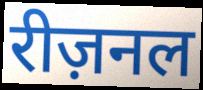
रीज़नल